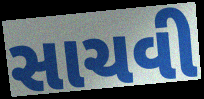
સાચવી